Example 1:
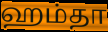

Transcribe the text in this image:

ஹம்தா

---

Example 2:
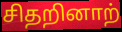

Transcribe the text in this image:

சிதறினாற்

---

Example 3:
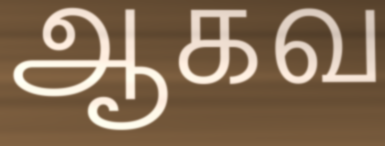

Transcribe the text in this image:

ஆகவ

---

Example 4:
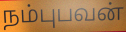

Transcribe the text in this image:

நம்புபவன்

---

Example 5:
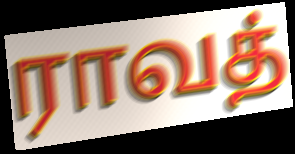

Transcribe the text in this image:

ராவத்